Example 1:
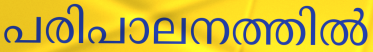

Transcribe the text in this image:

പരിപാലനത്തിൽ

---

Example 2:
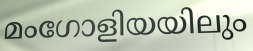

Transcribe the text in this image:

മംഗോളിയയിലും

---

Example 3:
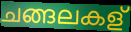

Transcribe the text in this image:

ചങ്ങലകള്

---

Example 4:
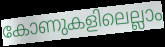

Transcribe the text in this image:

കോണുകളിലെല്ലാം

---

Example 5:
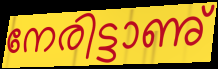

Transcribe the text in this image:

നേരിട്ടാണു്